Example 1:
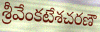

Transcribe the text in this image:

శ్రీవేంకటేశచరణౌ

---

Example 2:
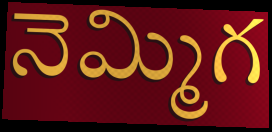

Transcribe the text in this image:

నెమ్మిగ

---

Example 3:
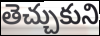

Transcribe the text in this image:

తెచ్చుకుని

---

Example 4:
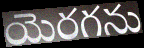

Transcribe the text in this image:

యెరగను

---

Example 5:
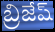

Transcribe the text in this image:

బ్రిజేష్